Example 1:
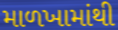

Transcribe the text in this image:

માળખામાંથી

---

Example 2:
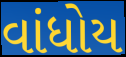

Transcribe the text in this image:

વાંધોય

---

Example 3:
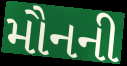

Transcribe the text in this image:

મૌનની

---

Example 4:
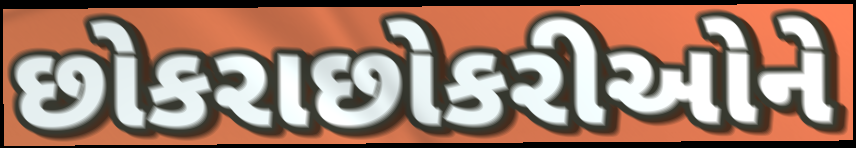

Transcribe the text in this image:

છોકરાછોકરીઓને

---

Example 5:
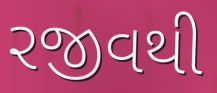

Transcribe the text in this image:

રજીવથી